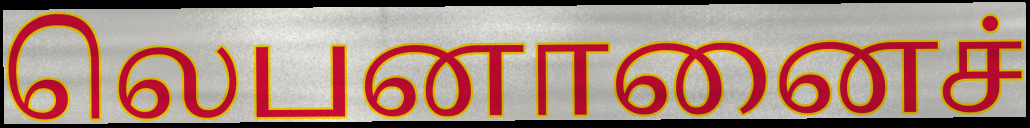
லெபனானைச்